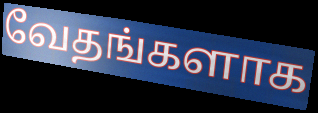
வேதங்களாக